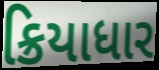
ક્રિયાધાર